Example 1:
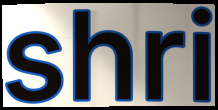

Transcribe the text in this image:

shri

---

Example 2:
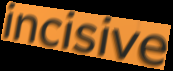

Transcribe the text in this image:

incisive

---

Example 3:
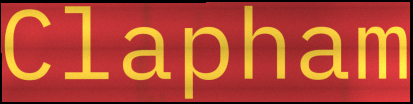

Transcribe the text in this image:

Clapham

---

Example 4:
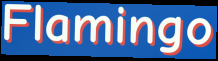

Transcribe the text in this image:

Flamingo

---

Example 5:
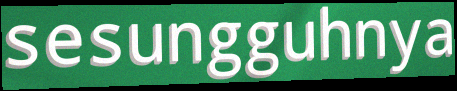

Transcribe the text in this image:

sesungguhnya